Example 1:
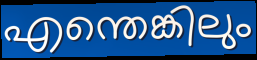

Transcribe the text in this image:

എന്തെങ്കിലും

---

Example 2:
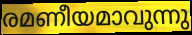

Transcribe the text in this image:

രമണീയമാവുന്നു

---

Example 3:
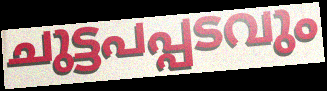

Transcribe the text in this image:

ചുട്ടപപ്പടവും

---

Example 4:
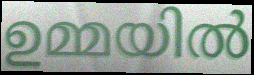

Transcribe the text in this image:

ഉമ്മയിൽ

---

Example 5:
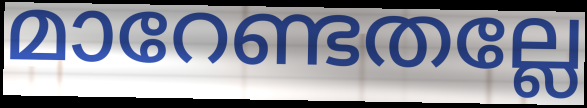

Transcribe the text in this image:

മാറേണ്ടതല്ലേ